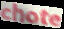
chote